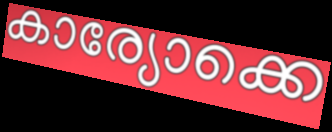
കാര്യോക്കെ